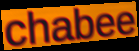
chabee